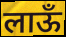
लाऊँ